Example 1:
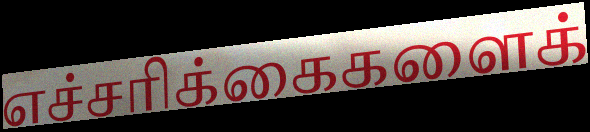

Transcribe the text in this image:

எச்சரிக்கைகளைக்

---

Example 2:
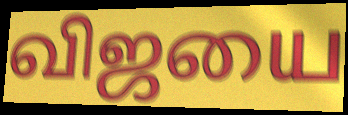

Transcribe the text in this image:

விஜயை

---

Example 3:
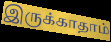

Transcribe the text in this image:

இருக்காதாம்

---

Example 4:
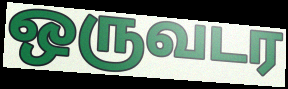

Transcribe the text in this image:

ஒருவடர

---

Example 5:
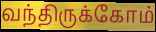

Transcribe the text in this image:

வந்திருக்கோம்